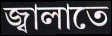
জ্বালাতে